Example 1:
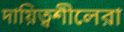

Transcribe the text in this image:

দায়িত্বশীলেরা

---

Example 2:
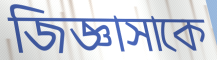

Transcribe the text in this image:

জিজ্ঞাসাকে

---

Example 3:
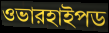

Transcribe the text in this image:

ওভারহাইপড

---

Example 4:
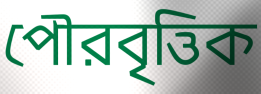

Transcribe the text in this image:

পৌরবৃত্তিক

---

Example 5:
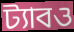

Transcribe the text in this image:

ট্যাবও